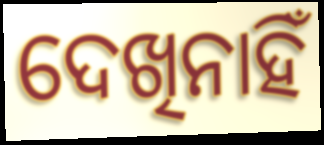
ଦେଖିନାହିଁ